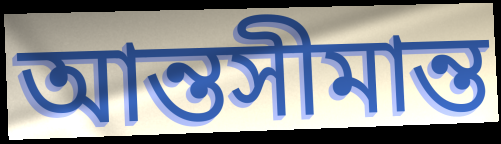
আন্তসীমান্ত